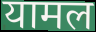
यामल